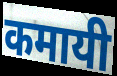
कमायी